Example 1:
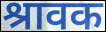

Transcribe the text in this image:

श्रावक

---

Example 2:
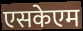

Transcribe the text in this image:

एसकेएम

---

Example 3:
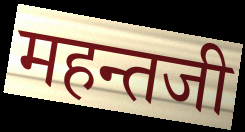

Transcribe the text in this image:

महन्तजी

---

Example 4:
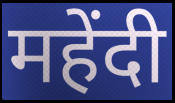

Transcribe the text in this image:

महेंदी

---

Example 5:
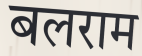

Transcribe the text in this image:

बलराम